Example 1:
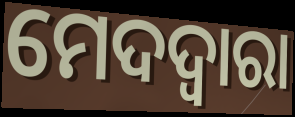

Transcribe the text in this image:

ମେଦଦ୍ଵାରା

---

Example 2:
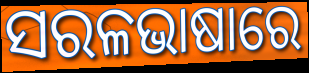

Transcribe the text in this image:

ସରଳଭାଷାରେ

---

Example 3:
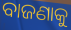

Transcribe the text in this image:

ବାଜଣାକୁ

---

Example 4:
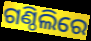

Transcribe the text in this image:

ଗଣ୍ଠିଲିରେ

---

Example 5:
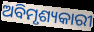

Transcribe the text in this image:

ଅବିମୃଶ୍ୟକାରୀ